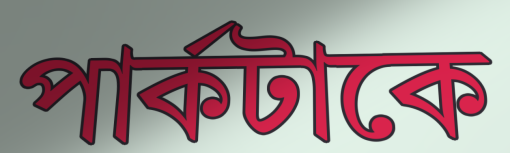
পার্কটাকে